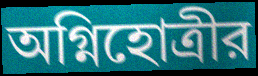
অগ্নিহোত্রীর